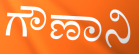
ಗೌಣಾನಿ